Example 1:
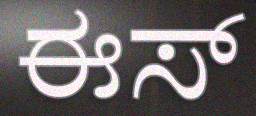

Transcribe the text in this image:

ಈಸ್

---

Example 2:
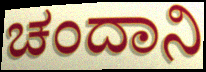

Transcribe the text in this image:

ಚಂದಾನಿ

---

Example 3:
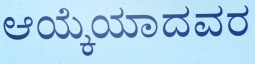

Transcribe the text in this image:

ಆಯ್ಕೆಯಾದವರ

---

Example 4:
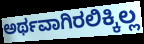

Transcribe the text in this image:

ಅರ್ಥವಾಗಿರಲಿಕ್ಕಿಲ್ಲ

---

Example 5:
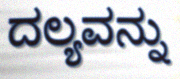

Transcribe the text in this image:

ದಲ್ಯವನ್ನು